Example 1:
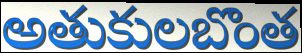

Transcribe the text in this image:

అతుకులబొంత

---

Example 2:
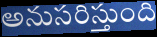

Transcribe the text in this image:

అనుసరిస్తుంది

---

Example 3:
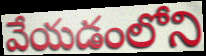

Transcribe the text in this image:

వేయడంలోని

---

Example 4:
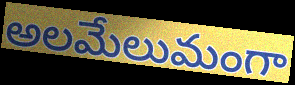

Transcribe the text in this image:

అలమేలుమంగా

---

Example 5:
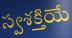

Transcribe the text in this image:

స్వశక్తియే